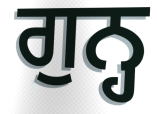
ਗੁਨ੍ਹ